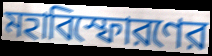
মহাবিস্ফোরণের